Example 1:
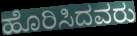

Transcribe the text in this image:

ಹೊರಿಸಿದವರು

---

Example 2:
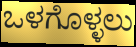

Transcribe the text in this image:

ಒಳಗೊಳ್ಳಲು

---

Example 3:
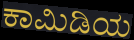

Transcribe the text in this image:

ಕಾಮಿಡಿಯ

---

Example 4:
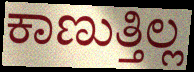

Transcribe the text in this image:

ಕಾಣುತ್ತಿಲ್ಲ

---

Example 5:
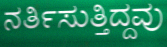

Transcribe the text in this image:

ನರ್ತಿಸುತ್ತಿದ್ದವು